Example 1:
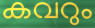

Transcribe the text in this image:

കവറും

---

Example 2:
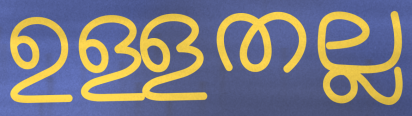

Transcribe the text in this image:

ഉള്ളതല്ല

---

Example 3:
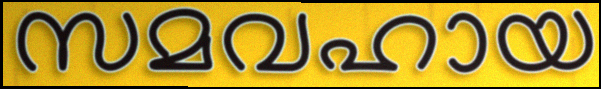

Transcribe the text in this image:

സമവഹായ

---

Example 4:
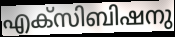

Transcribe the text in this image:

എക്സിബിഷനു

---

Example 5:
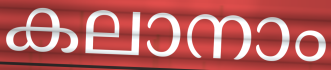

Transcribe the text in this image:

കലാനാം